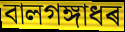
বালগঙ্গাধৰ